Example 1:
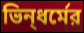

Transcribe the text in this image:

ভিন্‌ধর্মের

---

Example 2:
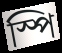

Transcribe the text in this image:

স্পি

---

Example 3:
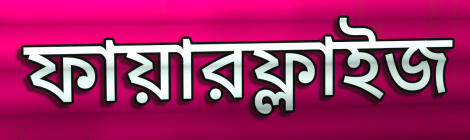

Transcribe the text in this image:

ফায়ারফ্লাইজ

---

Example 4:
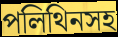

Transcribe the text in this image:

পলিথিনসহ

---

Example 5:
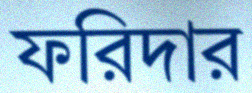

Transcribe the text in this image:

ফরিদার